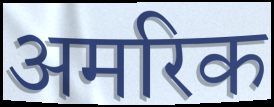
अमरिक